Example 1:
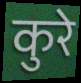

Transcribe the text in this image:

कुरे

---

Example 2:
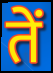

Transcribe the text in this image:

तें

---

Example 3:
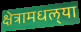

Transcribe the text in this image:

क्षेत्रामधल्या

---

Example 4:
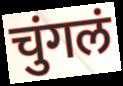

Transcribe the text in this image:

चुंगलं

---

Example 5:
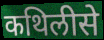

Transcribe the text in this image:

कथिलीसे